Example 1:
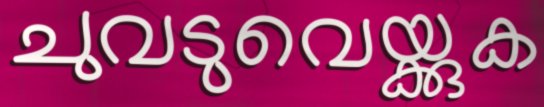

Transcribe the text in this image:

ചുവടുവെയ്ക്കുക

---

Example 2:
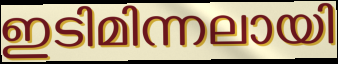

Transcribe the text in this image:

ഇടിമിന്നലായി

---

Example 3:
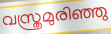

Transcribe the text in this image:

വസ്ത്രമുരിഞ്ഞു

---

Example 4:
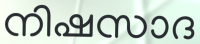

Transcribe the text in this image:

നിഷസാദ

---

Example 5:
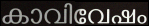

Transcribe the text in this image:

കാവിവേഷം